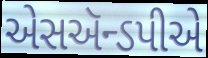
એસઍન્ડપીએ